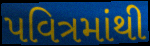
પવિત્રમાંથી